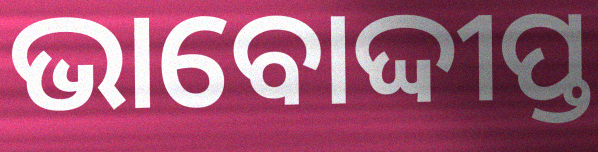
ଭାବୋଦ୍ଦୀପ୍ତ